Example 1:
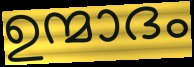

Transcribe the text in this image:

ഉന്മാദം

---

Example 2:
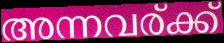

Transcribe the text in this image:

അന്നവര്ക്ക്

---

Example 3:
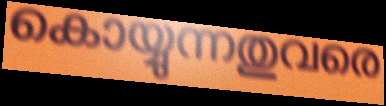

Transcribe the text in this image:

കൊയ്യുന്നതുവരെ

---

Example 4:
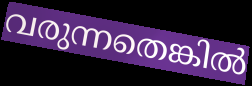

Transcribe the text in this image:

വരുന്നതെങ്കിൽ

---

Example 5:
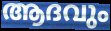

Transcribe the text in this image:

ആദവും